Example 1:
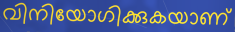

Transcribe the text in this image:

വിനിയോഗിക്കുകയാണ്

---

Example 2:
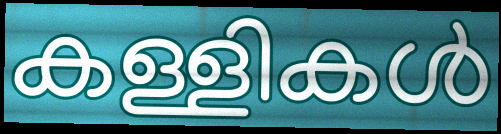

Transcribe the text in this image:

കള്ളികൾ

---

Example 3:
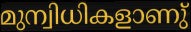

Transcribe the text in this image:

മുന്വിധികളാണു്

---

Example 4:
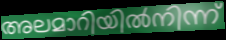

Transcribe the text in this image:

അലമാറിയിൽനിന്ന്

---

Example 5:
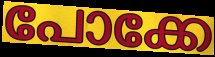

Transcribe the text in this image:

പോക്കേ